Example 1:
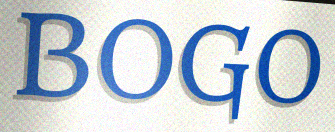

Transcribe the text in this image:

BOGO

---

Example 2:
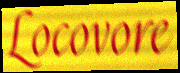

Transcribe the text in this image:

Locovore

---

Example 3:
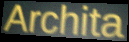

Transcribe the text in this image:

Archita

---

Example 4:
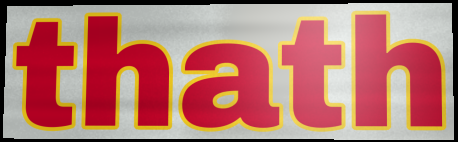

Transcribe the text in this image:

thath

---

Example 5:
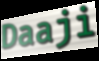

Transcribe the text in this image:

Daaji